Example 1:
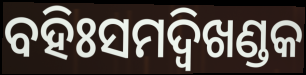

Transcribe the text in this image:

ବହିଃସମଦ୍ୱିଖଣ୍ଡକ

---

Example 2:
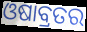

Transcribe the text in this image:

ଓଷାବ୍ରତର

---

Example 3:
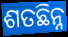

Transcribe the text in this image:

ଶତଛିନ୍ନ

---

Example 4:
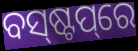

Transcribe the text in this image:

ବସ୍‌ଷ୍ଟପ୍‌ରେ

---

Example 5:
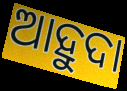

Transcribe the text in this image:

ଆହୁଦା